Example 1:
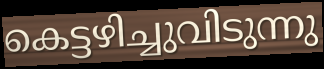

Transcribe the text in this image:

കെട്ടഴിച്ചുവിടുന്നു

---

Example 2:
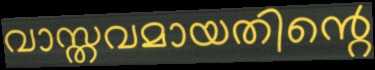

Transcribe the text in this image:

വാസ്തവമായതിന്റെ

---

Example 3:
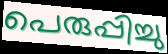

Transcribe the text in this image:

പെരുപ്പിച്ചു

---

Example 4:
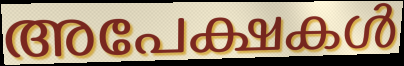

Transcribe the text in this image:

അപേക്ഷകൾ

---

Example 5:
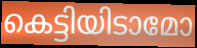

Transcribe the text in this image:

കെട്ടിയിടാമോ